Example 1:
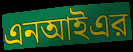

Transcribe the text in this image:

এনআইএর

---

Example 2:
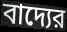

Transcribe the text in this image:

বাদ্যের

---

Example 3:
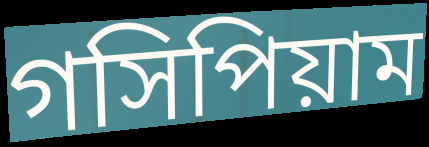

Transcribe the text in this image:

গসিপিয়াম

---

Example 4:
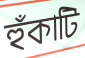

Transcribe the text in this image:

হুঁকাটি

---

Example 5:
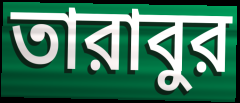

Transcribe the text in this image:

তারাবুর